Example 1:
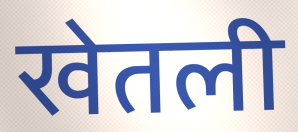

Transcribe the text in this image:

खेतली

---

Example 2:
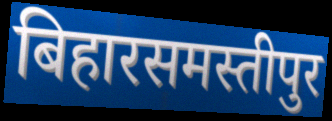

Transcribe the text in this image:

बिहारसमस्तीपुर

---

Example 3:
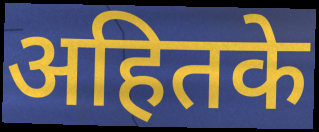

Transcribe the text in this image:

अहितके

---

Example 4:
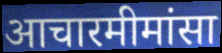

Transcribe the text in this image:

आचारमीमांसा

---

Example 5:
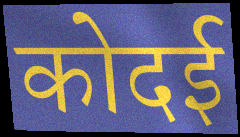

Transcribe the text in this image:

कोदई